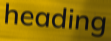
heading